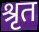
श्रृत